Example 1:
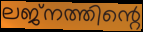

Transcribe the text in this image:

ലജ്നത്തിന്റെ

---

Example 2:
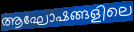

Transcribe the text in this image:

ആഘോഷങ്ങളിലെ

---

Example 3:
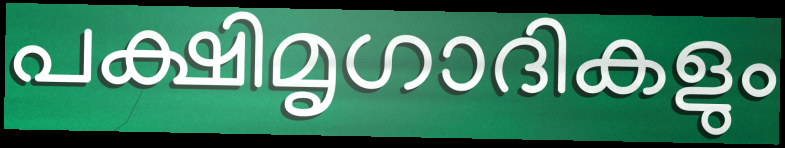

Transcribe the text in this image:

പക്ഷിമൃഗാദികളും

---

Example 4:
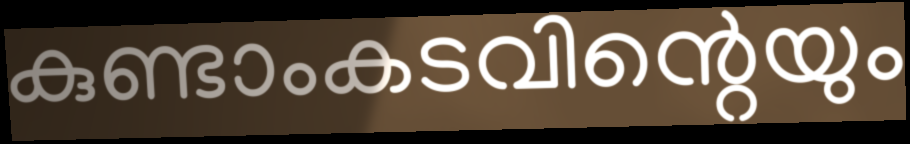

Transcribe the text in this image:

കുണ്ടാംകടവിന്റെയും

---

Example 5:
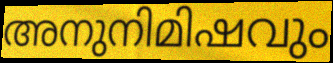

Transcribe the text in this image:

അനുനിമിഷവും